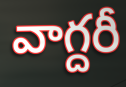
వాగ్దరీ